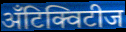
अँटिक्विटीज